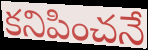
కనిపించనే